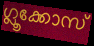
ഗ്ലൂക്കോസ്